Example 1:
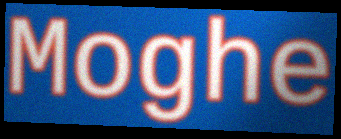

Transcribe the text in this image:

Moghe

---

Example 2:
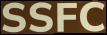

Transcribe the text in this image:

SSFC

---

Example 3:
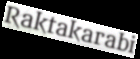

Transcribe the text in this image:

Raktakarabi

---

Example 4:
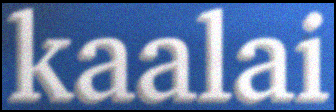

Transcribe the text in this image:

kaalai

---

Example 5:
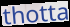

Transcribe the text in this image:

thotta